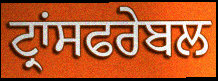
ਟ੍ਰਾਂਸਫਰੇਬਲ